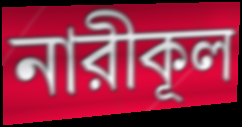
নারীকূল